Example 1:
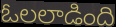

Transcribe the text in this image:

ఓలలాడింది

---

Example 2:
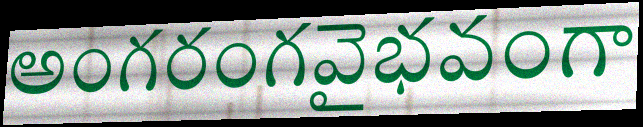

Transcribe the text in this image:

అంగరంగవైభవంగా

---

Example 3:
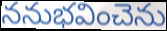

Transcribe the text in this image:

ననుభవించెను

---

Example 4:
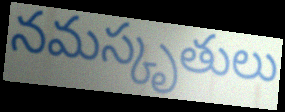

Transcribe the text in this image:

నమస్కృతులు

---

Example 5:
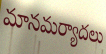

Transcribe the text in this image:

మానమర్యాదలు